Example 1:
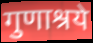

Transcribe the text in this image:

गुणाश्रये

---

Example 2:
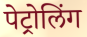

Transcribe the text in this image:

पेट्रोलिंग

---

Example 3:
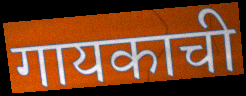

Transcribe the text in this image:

गायकाची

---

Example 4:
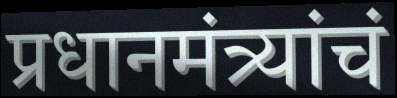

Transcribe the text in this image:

प्रधानमंत्र्यांचं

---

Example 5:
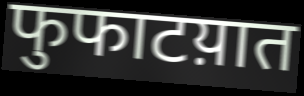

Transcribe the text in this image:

फुफाटय़ात